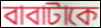
বাবাটাকে